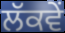
ਲੱਕਵੇਂ